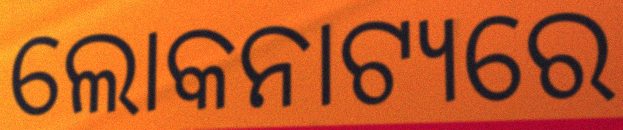
ଲୋକନାଟ୍ୟରେ